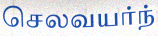
செலவயர்ந்